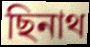
ছিনাথ